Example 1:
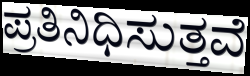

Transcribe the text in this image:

ಪ್ರತಿನಿಧಿಸುತ್ತವೆ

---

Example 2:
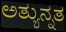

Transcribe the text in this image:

ಅತ್ಯುನ್ನತ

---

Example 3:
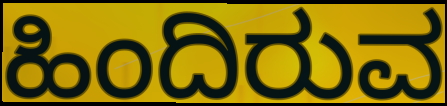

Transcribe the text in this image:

ಹಿಂದಿರುವ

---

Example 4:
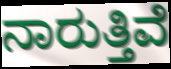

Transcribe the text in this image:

ನಾರುತ್ತಿವೆ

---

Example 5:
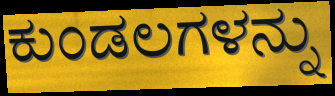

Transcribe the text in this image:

ಕುಂಡಲಗಳನ್ನು